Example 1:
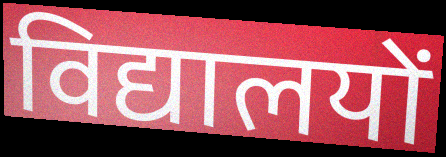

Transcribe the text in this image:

विद्यालयों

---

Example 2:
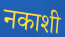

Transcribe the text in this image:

नकाशी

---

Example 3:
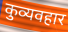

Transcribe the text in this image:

कुव्यवहार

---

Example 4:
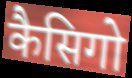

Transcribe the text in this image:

कैसिगो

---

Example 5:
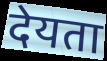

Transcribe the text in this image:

देयता